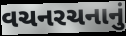
વચનરચનાનું